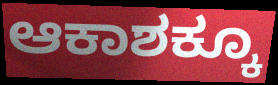
ಆಕಾಶಕ್ಕೂ